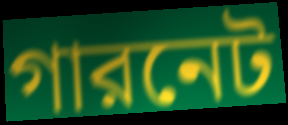
গারনেট